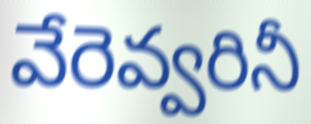
వేరెవ్వరినీ